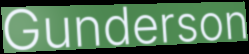
Gunderson